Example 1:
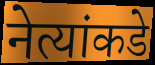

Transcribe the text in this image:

नेत्यांकडे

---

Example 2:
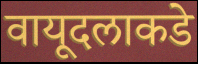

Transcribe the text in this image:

वायूदलाकडे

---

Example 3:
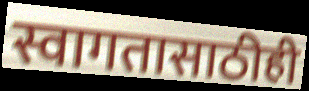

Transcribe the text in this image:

स्वागतासाठीही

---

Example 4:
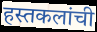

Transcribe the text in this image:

हस्तकलांची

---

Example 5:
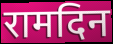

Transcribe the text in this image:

रामदिन